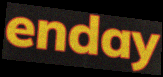
enday